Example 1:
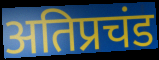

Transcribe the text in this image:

अतिप्रचंड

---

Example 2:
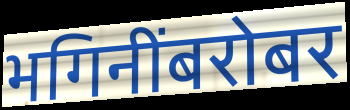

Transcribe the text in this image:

भगिनींबरोबर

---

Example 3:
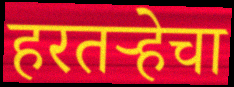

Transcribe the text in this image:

हरतऱ्हेचा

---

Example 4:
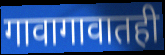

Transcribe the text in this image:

गावागावातही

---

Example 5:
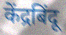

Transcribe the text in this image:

केंद्रबिंदू